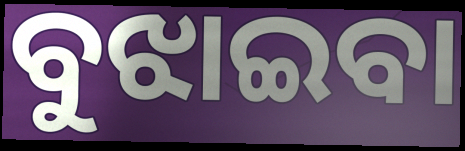
ବୁଝାଇବା